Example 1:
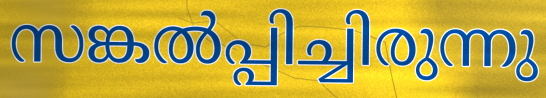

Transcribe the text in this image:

സങ്കൽപ്പിച്ചിരുന്നു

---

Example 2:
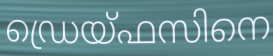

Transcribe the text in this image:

ഡ്രെയ്ഫസിനെ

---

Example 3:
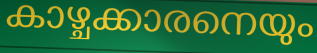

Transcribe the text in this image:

കാഴ്ചക്കാരനെയും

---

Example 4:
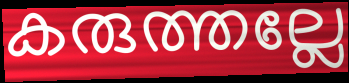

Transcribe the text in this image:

കരുത്തല്ലേ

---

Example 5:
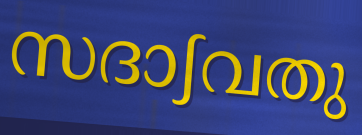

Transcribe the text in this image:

സദാഽവതു